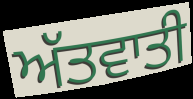
ਅੱਤਵਾਤੀ